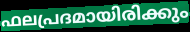
ഫലപ്രദമായിരിക്കും